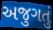
અજુગતું